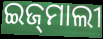
ଇଜ୍‌ମାଲୀ